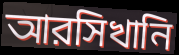
আরসিখানি